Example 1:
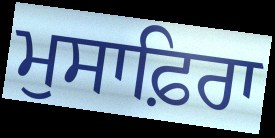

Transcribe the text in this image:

ਮੁਸਾਫ਼ਿਰਾ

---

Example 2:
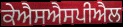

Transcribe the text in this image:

ਕੇਐਸਐਸਪੀਐਲ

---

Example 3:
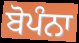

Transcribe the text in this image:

ਬੋਪੰਨਾ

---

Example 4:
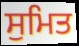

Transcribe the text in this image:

ਸੁਮਿਤ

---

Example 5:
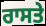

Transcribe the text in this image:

ਰਾਸਤੇ